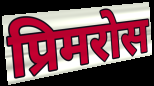
प्रिमरोस